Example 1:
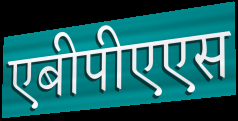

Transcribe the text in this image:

एबीपीएएस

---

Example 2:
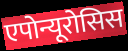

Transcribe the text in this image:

एपोन्यूरोसिस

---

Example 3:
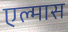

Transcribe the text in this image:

एल्मास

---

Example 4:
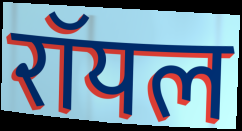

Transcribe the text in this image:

रॉयल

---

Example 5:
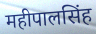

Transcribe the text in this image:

महीपालसिंह